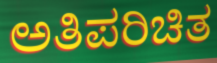
ಅತಿಪರಿಚಿತ